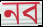
নব